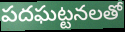
పదఘట్టనలతో